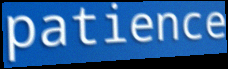
patience